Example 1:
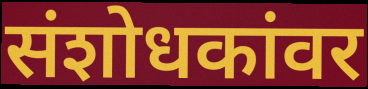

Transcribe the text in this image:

संशोधकांवर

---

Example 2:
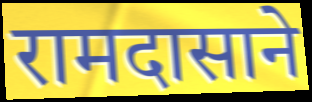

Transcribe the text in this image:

रामदासाने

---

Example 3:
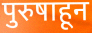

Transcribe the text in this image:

पुरुषाहून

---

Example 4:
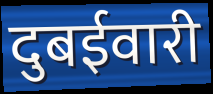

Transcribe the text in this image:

दुबईवारी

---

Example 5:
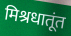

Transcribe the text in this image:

मिश्रधातूंत